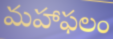
మహాఫలం